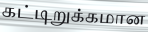
கட்டிறுக்கமான